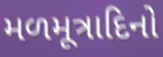
મળમૂત્રાદિનો